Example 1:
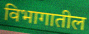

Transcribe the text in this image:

विभागातील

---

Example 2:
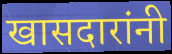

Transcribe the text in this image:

खासदारांनी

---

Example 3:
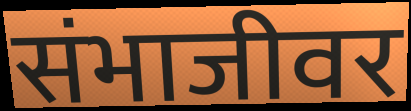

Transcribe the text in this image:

संभाजीवर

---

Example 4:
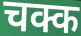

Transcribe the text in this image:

चक्क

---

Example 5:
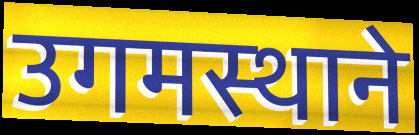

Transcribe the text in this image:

उगमस्थाने